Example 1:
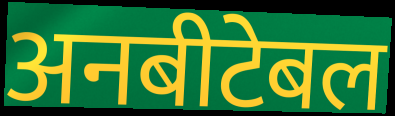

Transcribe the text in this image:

अनबीटेबल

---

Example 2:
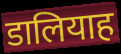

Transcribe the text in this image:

डालियाह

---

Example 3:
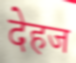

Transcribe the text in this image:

देहज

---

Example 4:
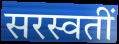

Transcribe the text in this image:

सरस्वतीं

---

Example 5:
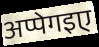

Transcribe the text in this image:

अप्पेगइए